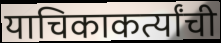
याचिकाकर्त्यांची